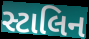
સ્ટાલિન